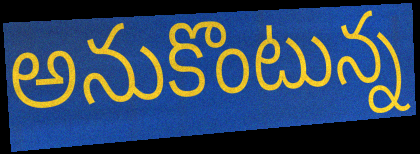
అనుకొంటున్న